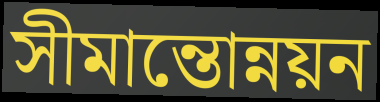
সীমান্তোন্নয়ন